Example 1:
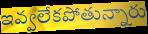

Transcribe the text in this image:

ఇవ్వలేకపోతున్నారు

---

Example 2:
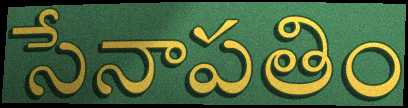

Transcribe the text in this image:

సేనాపతిం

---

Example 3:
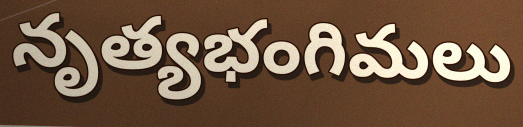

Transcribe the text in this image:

నృత్యభంగిమలు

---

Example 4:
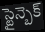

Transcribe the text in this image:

స్టైన్బెక్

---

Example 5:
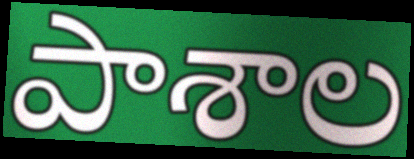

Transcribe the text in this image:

పాశాల